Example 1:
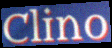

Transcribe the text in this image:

Clino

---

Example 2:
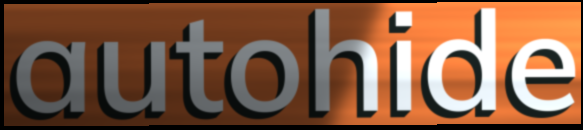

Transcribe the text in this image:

autohide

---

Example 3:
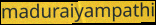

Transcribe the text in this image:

maduraiyampathi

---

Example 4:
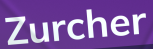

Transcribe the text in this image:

Zurcher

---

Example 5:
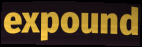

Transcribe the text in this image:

expound